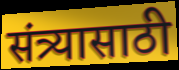
संत्र्यासाठी